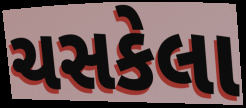
ચસકેલા